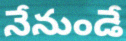
నేనుండే